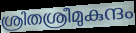
ശ്രിതശ്രീമുകുന്ദം